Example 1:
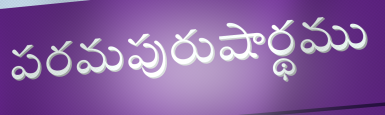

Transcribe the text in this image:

పరమపురుషార్థము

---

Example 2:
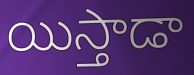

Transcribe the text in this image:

యిస్తాడా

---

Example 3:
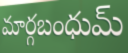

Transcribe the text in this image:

మార్గబంధుమ్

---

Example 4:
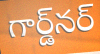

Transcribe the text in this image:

గార్డ్‌నర్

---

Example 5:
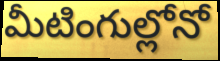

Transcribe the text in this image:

మీటింగుల్లోనో